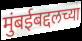
मुंबईबद्दलच्या